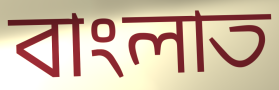
বাংলাত